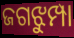
ଜଗଝୁମ୍ପା